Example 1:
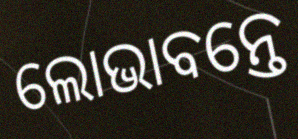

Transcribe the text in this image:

ଲୋଭାବନ୍ତେ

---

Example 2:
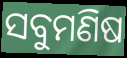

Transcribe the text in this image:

ସବୁମଣିଷ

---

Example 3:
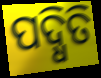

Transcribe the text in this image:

ପଦ୍ଧିତି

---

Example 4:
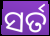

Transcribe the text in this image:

ସର୍ତ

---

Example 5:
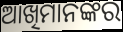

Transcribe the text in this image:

ଆଖିମାନଙ୍କର